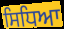
ਸਿਧਿਆ